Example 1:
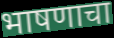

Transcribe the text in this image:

भाषणाचा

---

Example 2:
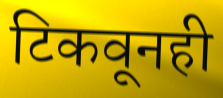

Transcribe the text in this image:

टिकवूनही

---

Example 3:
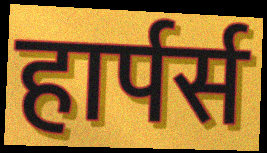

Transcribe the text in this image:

हार्पर्स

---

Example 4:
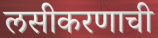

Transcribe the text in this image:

लसीकरणाची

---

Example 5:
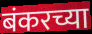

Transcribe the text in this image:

बंकरच्या